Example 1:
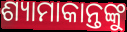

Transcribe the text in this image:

ଶ୍ୟାମାକାନ୍ତଙ୍କୁ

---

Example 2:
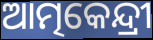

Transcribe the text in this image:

ଆତ୍ମକେନ୍ଦ୍ରୀ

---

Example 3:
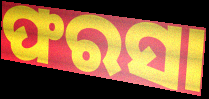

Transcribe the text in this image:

ଫରସା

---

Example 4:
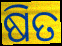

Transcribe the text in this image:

ଷିତ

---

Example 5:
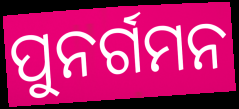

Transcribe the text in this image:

ପୁନର୍ଗମନ